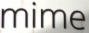
mime